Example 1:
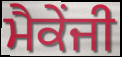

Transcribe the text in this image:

ਮੈਕੇਂਜੀ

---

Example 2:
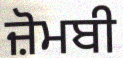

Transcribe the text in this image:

ਜ਼ੋਮਬੀ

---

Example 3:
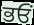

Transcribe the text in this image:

ਭਓਂ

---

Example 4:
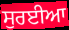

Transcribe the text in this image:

ਸੁਰਈਆ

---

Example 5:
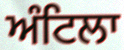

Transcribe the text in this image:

ਅੰਟਿਲਾ